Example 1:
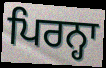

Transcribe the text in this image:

ਪਿਰਨ੍ਹਾ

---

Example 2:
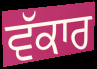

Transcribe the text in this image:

ਵੱਕਾਰ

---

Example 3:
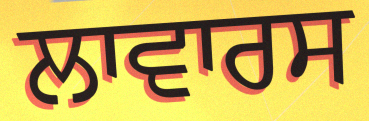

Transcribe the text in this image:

ਲਾਵਾਰਸ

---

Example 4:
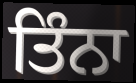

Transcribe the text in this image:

ਤਿੰਨਾ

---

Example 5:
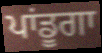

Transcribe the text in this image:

ਪਾਂਡੂਗਾ